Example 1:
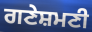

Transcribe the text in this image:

ਗਣੇਸ਼ਮਣੀ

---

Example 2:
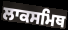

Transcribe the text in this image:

ਲਾਕਸਮਿਥ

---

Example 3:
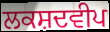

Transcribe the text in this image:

ਲਕਸ਼ਦਵੀਪ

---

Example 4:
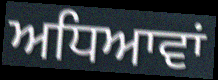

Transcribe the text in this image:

ਅਧਿਆਵਾਂ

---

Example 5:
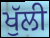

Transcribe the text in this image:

ਖੁੱਲੀ